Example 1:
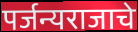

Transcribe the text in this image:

पर्जन्यराजाचे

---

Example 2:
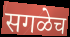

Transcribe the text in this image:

सगळेच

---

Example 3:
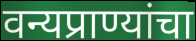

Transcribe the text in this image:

वन्यप्राण्यांचा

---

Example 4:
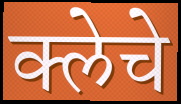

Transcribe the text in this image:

क्लेचे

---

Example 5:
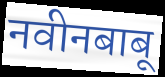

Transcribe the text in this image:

नवीनबाबू